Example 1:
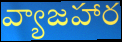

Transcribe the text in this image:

వ్యాజహార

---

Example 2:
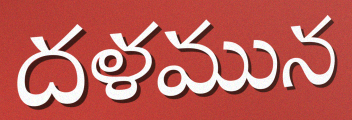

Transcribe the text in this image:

దళమున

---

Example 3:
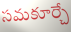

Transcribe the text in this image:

సమకూర్చే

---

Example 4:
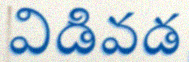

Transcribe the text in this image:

విడివడ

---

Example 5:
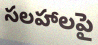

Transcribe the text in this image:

సలహాలపై